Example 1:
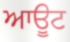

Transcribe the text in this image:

ਆਊਟ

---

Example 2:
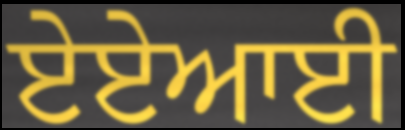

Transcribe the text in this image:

ਏਏਆਈ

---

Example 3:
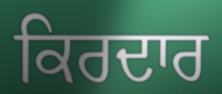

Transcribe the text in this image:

ਕਿਰਦਾਰ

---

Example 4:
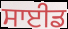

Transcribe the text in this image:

ਸਾਈਡ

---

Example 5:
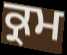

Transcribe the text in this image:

ਕ੍ਰਮ